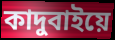
কাদুবাইয়ে